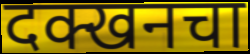
दक्खनचा